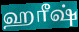
ஹரீஷ்